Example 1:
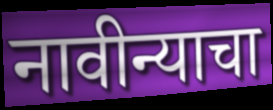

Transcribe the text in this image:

नावीन्याचा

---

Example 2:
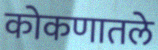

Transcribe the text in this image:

कोकणातले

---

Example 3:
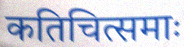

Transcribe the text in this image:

कतिचित्समाः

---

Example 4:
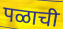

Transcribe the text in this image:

पळाची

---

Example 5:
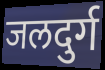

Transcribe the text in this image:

जलदुर्ग